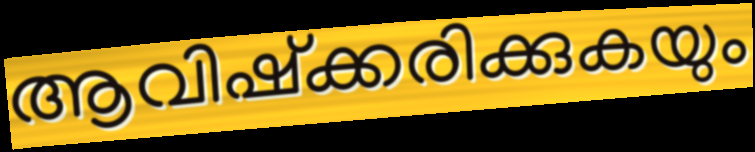
ആവിഷ്ക്കരിക്കുകയും